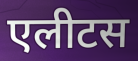
एलीटस